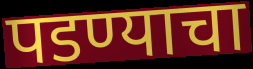
पडण्याचा